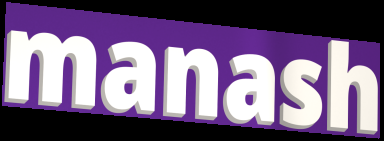
manash